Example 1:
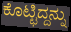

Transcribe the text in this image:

ಕೊಟ್ಟಿದ್ದನ್ನು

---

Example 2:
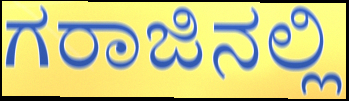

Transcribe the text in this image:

ಗರಾಜಿನಲ್ಲಿ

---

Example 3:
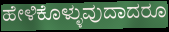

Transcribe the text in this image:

ಹೇಳಿಕೊಳ್ಳುವುದಾದರೂ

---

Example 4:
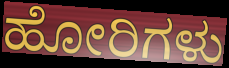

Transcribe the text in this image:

ಹೋರಿಗಳು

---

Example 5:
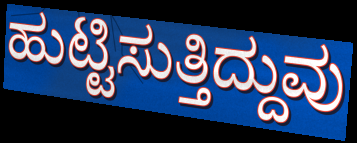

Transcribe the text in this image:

ಹುಟ್ಟಿಸುತ್ತಿದ್ದುವು